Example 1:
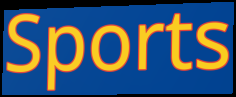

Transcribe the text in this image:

Sports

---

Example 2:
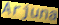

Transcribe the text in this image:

Arjuna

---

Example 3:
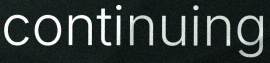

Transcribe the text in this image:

continuing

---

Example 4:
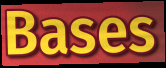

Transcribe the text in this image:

Bases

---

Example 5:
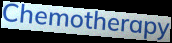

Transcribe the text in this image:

Chemotherapy